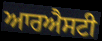
ਆਰਐਸਟੀ